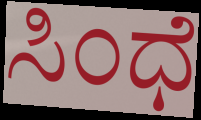
ಸಿಂಧೆ